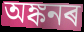
অঙ্কনৰ